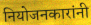
नियोजनकारांनी